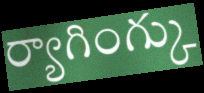
ర్యాగింగ్కు